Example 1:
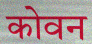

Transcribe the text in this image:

कोवन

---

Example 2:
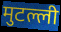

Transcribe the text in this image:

मुटल्ली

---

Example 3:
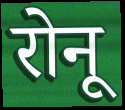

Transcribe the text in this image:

रोनू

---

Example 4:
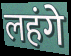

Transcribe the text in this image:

लहंगे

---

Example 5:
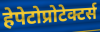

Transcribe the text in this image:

हेपेटोप्रोटेक्टर्स